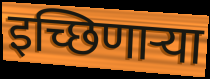
इच्छिणार्‍या